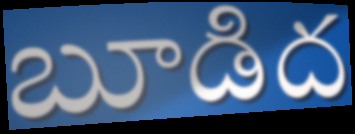
బూడిద